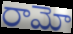
రామో